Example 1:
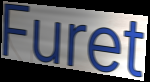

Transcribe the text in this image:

Furet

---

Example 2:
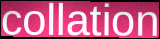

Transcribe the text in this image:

collation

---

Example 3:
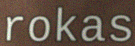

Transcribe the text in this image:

rokas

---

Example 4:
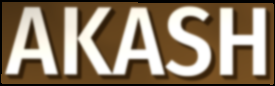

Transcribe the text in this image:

AKASH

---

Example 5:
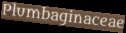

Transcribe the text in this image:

Plumbaginaceae